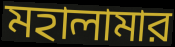
মহালামার